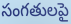
సంగతులపై